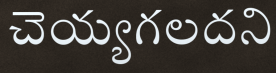
చెయ్యగలదని